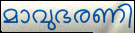
മാവുഭരണി